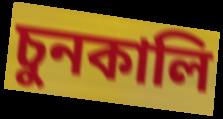
চুনকালি